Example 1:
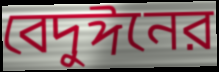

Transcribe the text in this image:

বেদুঈনের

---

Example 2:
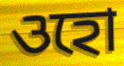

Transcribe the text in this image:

ওহো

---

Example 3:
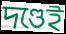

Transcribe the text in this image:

দণ্ডেই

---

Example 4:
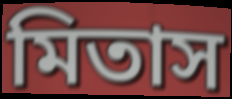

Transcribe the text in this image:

মিতাস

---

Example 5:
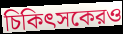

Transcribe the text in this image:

চিকিৎসকেরও